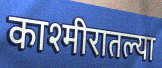
काश्मीरातल्या